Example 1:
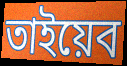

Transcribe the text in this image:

তাইয়েব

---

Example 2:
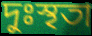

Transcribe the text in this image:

দুঃস্থতা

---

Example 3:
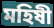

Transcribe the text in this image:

মহিষী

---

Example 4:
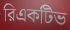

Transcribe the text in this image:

রিএকটিভ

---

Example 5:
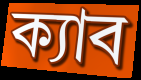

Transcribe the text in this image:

ক্যাব